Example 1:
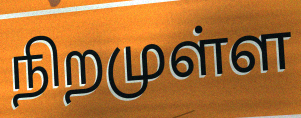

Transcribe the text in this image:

நிறமுள்ள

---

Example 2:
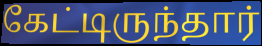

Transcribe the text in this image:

கேட்டிருந்தார்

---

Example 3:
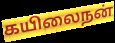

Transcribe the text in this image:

கயிலைநன்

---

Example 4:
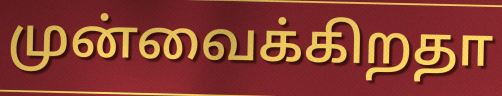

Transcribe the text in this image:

முன்வைக்கிறதா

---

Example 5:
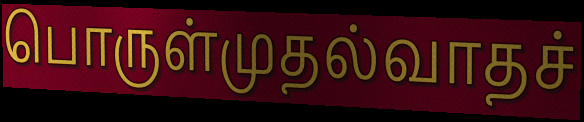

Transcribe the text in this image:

பொருள்முதல்வாதச்